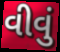
વીવું